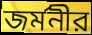
জর্মনীর